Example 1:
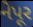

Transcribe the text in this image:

નેપૂર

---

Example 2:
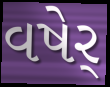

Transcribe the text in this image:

વષેર્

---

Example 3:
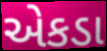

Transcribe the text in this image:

એકડા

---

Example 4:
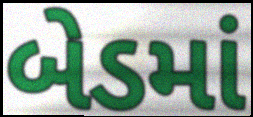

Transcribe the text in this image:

બેડમાં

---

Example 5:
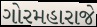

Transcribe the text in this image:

ગોરમહારાજે